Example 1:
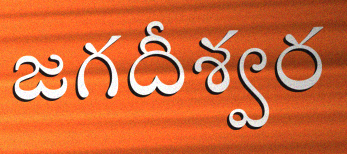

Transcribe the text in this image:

జగదీశ్వర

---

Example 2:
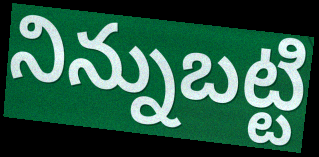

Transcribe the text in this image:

నిన్నుబట్టి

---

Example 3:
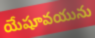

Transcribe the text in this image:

యేషూవయును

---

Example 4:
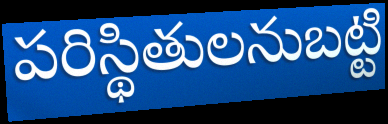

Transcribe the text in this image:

పరిస్థితులనుబట్టి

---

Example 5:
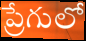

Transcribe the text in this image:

ప్రేగులో